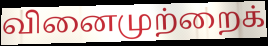
வினைமுற்றைக்